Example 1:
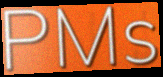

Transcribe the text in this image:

PMs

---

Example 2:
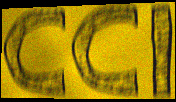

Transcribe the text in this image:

CCI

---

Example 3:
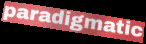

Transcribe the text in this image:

paradigmatic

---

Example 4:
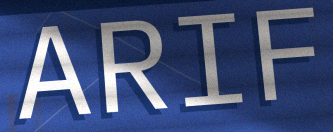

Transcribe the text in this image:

ARIF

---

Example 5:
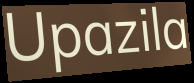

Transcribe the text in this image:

Upazila